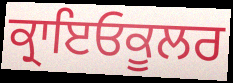
ਕ੍ਰਾਇਓਕੂਲਰ